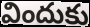
విందుకు